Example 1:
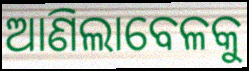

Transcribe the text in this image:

ଆଣିଲାବେଳକୁ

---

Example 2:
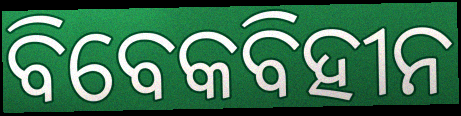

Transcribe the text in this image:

ବିବେକବିହୀନ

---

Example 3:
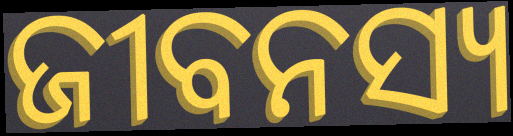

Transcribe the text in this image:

ଜୀବନସ୍ୟ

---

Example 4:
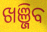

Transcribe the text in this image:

ଖଞ୍ଜିବ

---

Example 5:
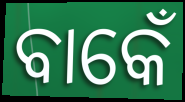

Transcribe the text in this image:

ବାକେଁ